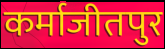
कर्माजीतपुर